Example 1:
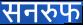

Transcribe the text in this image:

सनरुफ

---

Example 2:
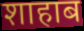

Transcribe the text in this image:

शाहाब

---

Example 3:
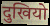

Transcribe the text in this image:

दुखियो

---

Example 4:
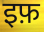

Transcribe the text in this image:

इफ़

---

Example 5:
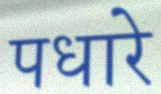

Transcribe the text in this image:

पधारे